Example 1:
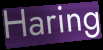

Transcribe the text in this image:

Haring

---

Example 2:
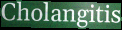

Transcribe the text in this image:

Cholangitis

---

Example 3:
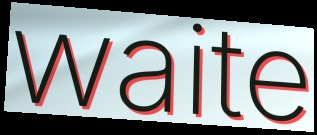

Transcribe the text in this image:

waite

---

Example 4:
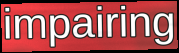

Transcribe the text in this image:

impairing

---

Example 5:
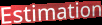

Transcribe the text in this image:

Estimation